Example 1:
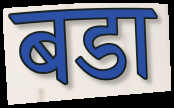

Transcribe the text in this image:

बडा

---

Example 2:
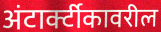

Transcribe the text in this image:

अंटार्क्टीकावरील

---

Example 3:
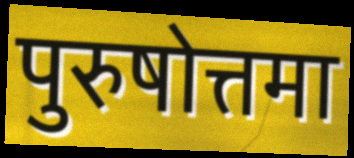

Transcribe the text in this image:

पुरुषोत्तमा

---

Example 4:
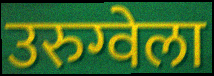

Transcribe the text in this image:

उरुग्वेला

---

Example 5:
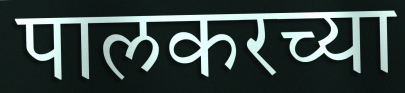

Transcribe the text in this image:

पालकरच्या